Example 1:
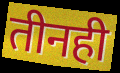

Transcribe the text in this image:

तीनही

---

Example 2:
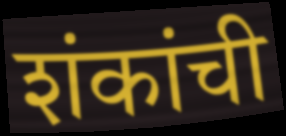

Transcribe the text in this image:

शंकांची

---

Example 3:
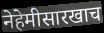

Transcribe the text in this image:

नेहेमीसारखाच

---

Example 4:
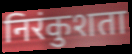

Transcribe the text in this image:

निरंकुशता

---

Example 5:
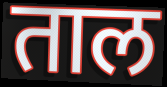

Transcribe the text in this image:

ताल